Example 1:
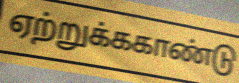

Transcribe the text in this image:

ஏற்றுக்ககாண்டு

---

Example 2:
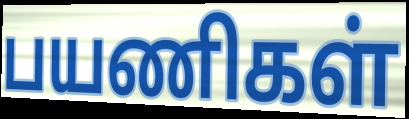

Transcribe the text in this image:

பயணிகள்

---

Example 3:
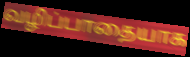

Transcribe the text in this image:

வழிப்பாதையாக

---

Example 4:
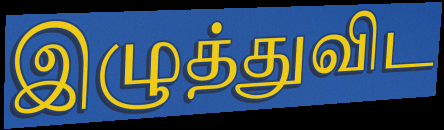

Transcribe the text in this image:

இழுத்துவிட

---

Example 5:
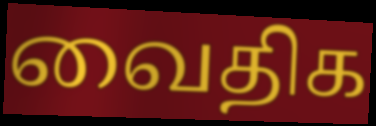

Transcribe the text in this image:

வைதிக